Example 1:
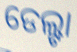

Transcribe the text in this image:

ଡେଲ୍ଟା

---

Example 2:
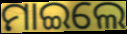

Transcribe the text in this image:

ମାଇଲେ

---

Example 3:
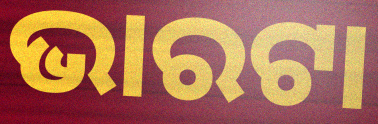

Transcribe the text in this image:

ଭାରଟା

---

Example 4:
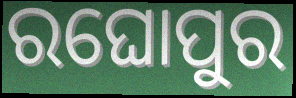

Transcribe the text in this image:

ରଘୋପୁର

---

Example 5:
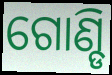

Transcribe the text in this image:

ଗୋଣ୍ଡି